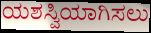
ಯಶಸ್ವಿಯಾಗಿಸಲು